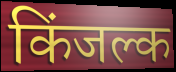
किंजल्क